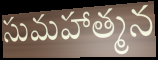
సుమహాత్మన